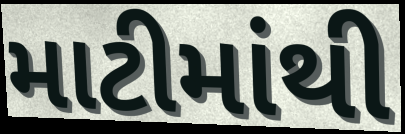
માટીમાંથી